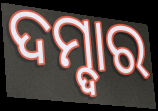
ଦମ୍ଦାର